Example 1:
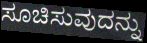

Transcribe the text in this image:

ಸೂಚಿಸುವುದನ್ನು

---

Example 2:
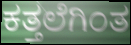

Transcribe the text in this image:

ಕತ್ತಲೆಗಿಂತ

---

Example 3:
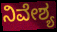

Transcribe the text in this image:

ನಿವೇಶ್ಯ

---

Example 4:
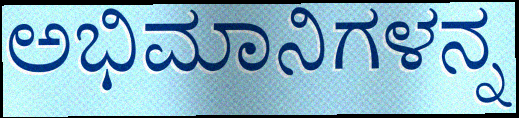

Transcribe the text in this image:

ಅಭಿಮಾನಿಗಳನ್ನ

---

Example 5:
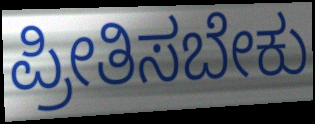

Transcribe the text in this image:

ಪ್ರೀತಿಸಬೇಕು